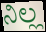
ನಿಲ್ಲ